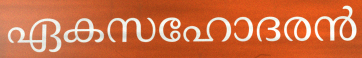
ഏകസഹോദരൻ